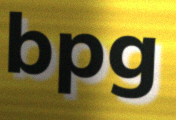
bpg